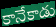
కానేకాడు